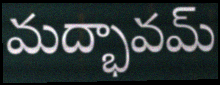
మద్భావమ్